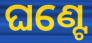
ଘଣ୍ଟେ